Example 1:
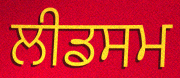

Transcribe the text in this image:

ਲੀਡਸਮ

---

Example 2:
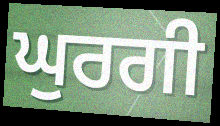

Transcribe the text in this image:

ਘੁਰਗੀ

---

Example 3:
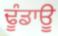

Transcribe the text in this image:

ਢੂੰਡਾਊ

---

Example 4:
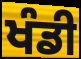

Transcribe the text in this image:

ਖੰਡੀ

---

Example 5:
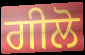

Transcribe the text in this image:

ਗੀਲੋ